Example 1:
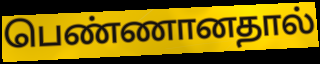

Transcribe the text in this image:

பெண்ணானதால்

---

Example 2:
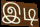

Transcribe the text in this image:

இடி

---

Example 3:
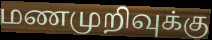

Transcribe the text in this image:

மணமுறிவுக்கு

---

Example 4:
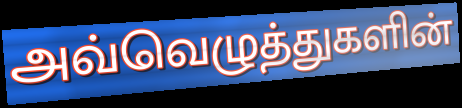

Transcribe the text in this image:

அவ்வெழுத்துகளின்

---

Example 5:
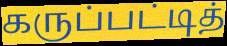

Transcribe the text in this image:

கருப்பட்டித்